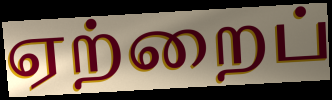
ஏற்றைப்